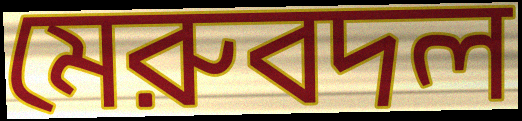
মেরুবদল